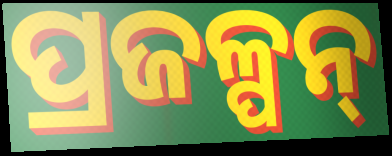
ପ୍ରଜଳ୍ପନ୍